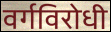
वर्गविरोधी